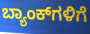
ಬ್ಯಾಂಕ್‌ಗಳಿಗೆ